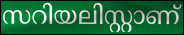
സറിയലിസ്റ്റാണ്